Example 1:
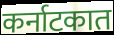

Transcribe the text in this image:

कर्नाटकात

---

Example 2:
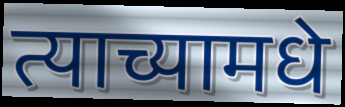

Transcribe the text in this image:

त्याच्यामधे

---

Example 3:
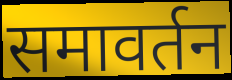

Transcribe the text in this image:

समावर्तन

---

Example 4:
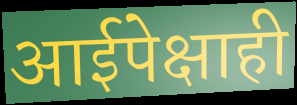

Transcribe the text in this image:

आईपेक्षाही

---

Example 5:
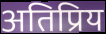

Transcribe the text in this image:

अतिप्रिय